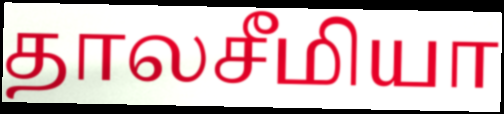
தாலசீமியா